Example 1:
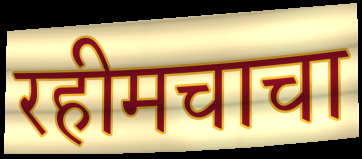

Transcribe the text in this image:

रहीमचाचा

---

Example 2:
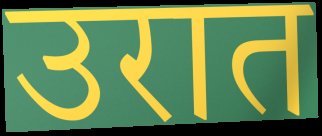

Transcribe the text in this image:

उरात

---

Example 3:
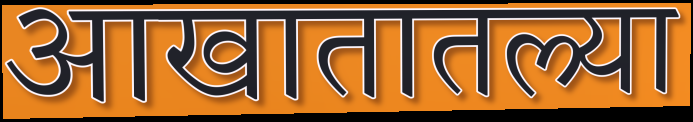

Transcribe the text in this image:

आखातातल्या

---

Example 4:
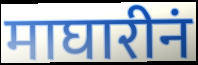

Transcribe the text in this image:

माघारीनं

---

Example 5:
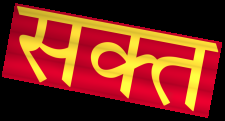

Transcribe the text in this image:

सक्त